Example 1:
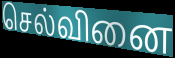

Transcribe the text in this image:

செல்வினை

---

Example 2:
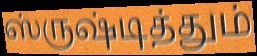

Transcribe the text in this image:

ஸ்ருஷ்டித்தும்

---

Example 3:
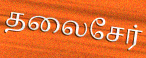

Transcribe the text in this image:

தலைசேர்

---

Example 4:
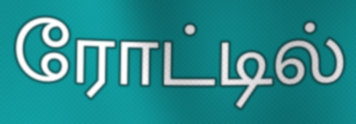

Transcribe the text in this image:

ரோட்டில்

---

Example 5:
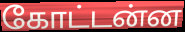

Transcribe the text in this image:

கோட்டன்ன